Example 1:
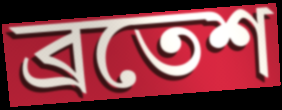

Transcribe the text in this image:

ব্রতেশ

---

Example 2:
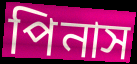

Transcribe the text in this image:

পিনাস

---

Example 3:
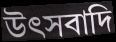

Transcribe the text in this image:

উৎসবাদি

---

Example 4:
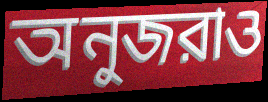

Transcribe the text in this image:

অনুজরাও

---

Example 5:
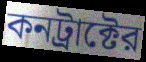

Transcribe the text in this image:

কনট্রাক্টের